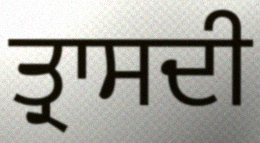
ਤ੍ਰਾਸਦੀ